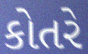
કોતરે